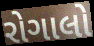
રોગાલો